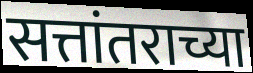
सत्तांतराच्या